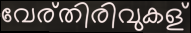
വേര്തിരിവുകള്